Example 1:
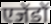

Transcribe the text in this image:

एजेंडों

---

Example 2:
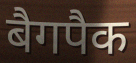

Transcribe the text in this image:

बैगपैक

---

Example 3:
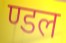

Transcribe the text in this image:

ण्डल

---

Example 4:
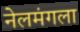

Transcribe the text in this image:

नेलमंगला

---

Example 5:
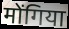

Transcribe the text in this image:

मोंगिया